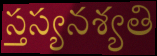
స్తస్యనశ్యతి